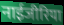
नाईजीरिया